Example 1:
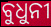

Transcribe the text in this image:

ବୁଧୁନୀ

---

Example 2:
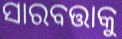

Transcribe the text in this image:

ସାରବତ୍ତାକୁ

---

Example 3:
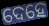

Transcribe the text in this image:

ଦେହେ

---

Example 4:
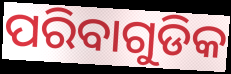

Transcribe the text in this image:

ପରିବାଗୁଡିକ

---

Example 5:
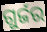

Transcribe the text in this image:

ଗୁର୍ଜର